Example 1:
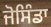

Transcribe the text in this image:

ਜੋਸਿੰਡਾ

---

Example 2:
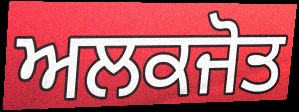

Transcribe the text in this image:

ਅਲਕਜੋਤ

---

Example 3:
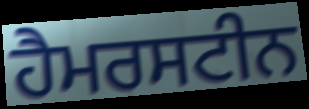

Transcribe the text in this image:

ਹੈਮਰਸਟੀਨ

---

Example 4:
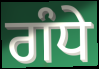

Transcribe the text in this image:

ਗੰਧੇ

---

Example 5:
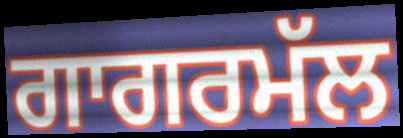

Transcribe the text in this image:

ਗਾਗਰਮੱਲ